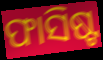
ଫାସିଷ୍ଟ